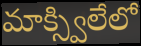
మాక్స్విలేలో